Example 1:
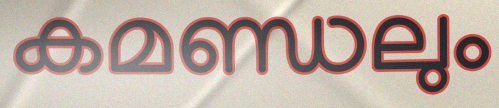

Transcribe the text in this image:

കമണ്ഡലും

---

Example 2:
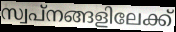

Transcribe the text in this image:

സ്വപ്നങ്ങളിലേക്ക്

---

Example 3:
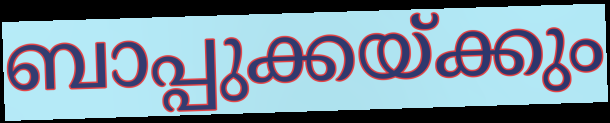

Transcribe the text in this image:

ബാപ്പുക്കയ്ക്കും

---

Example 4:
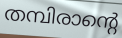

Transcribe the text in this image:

തമ്പിരാന്റെ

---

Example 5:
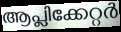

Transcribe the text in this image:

ആപ്ലിക്കേറ്റർ